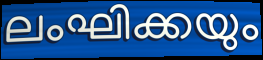
ലംഘിക്കയും